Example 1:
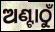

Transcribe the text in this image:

ଅଣ୍ଟାଠୁଁ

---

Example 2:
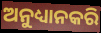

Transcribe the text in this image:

ଅନୁଧ୍ୟାନକରି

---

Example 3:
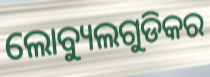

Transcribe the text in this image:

ଲୋବ୍ୟୁଲଗୁଡିକର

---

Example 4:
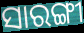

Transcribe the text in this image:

ସାରଙ୍ଗୀ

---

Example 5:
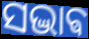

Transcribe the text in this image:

ସଦ୍ଭାଵ